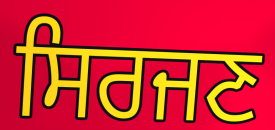
ਸਿਰਜਣ